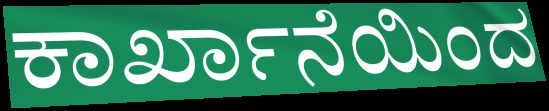
ಕಾರ್ಖಾನೆಯಿಂದ